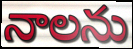
నాలను